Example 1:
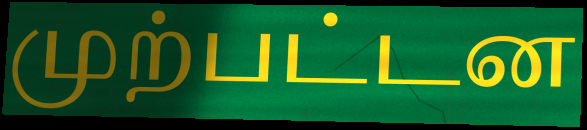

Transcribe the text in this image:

முற்பட்டன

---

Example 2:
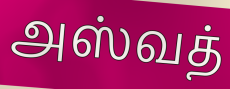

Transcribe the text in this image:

அஸ்வத்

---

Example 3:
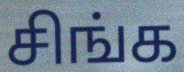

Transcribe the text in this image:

சிங்க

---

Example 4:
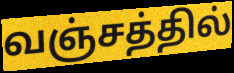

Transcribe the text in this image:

வஞ்சத்தில்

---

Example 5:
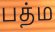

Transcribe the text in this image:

பத்ம